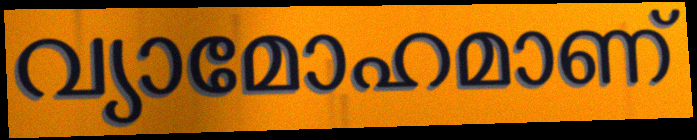
വ്യാമോഹമാണ്